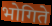
भोगिते